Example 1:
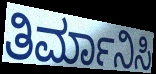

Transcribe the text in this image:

ತಿರ್ಮಾನಿಸಿ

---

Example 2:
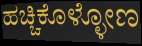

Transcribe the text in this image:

ಹಚ್ಚಿಕೊಳ್ಳೋಣ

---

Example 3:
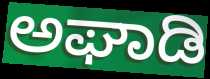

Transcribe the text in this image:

ಅಘಾಡಿ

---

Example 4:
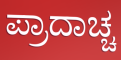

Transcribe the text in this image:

ಪ್ರಾದಾಚ್ಚ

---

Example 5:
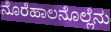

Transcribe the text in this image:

ನೊರೆಹಾಲನೊಲ್ಲೆನು